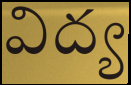
విద్య